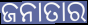
ଜନାତାର